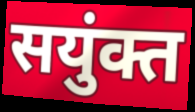
सयुंक्त